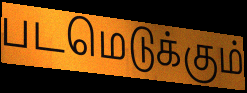
படமெடுக்கும்